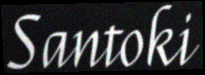
Santoki